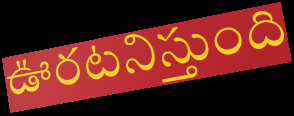
ఊరటనిస్తుంది